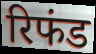
रिफंड